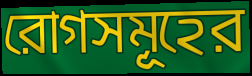
রোগসমূহের